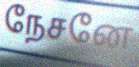
நேசனே